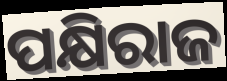
ପକ୍ଷିରାଜ